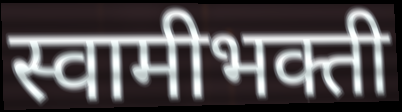
स्वामीभक्ती